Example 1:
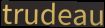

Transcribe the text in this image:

trudeau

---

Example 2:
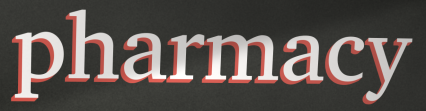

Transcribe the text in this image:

pharmacy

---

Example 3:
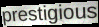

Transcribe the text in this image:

prestigious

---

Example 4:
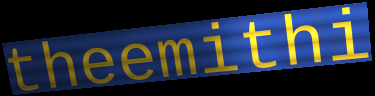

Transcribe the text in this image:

theemithi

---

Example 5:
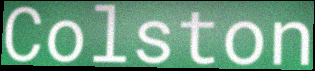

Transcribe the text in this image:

Colston